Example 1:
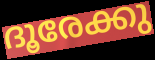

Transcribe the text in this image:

ദൂരേക്കു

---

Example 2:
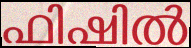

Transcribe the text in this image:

ഫിഷിൽ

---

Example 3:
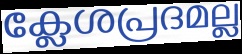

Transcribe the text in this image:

ക്ലേശപ്രദമല്ല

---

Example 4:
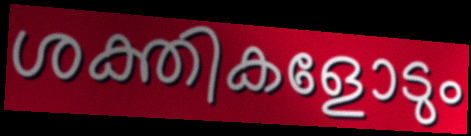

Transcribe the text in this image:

ശക്തികളോടും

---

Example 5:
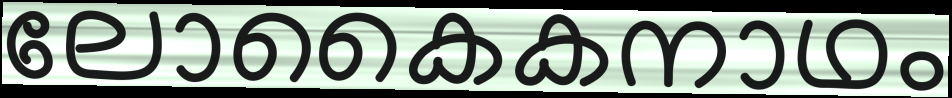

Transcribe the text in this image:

ലോകൈകനാഥം